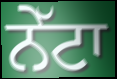
ਨੇੱਟਾ